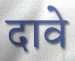
दावे